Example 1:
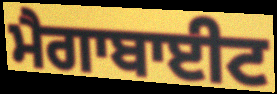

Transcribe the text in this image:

ਮੈਗਾਬਾਈਟ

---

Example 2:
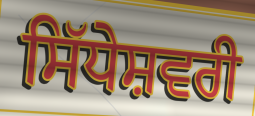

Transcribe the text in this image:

ਸਿੱਧੇਸ਼ਵਰੀ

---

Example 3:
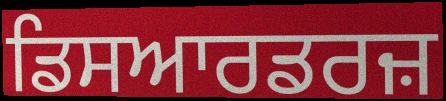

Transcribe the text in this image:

ਡਿਸਆਰਡਰਜ਼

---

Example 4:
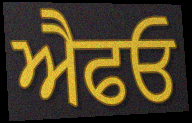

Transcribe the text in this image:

ਐਫਓ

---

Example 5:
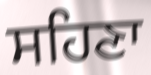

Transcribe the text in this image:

ਸਹਿਣਾ